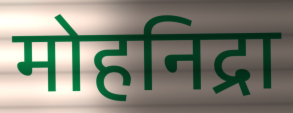
मोहनिद्रा